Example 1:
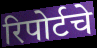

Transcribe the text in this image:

रिपोर्टचे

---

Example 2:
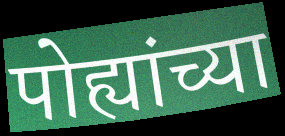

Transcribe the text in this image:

पोह्यांच्या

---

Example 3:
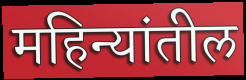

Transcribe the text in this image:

महिन्यांतील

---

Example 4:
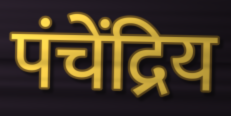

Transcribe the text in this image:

पंचेंद्रिय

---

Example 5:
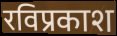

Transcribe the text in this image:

रविप्रकाश